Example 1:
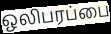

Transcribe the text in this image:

ஒலிபரப்பை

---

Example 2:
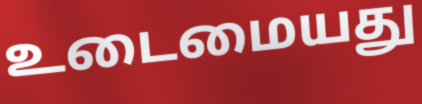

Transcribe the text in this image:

உடைமையது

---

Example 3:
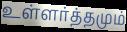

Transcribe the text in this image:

உள்ளர்த்தமும்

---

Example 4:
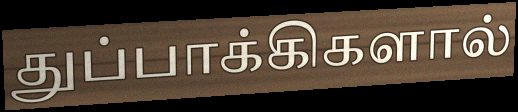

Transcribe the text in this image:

துப்பாக்கிகளால்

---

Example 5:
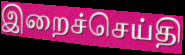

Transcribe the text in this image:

இறைச்செய்தி